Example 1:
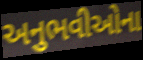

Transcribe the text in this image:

અનુભવીઓના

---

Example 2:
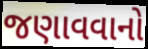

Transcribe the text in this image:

જણાવવાનો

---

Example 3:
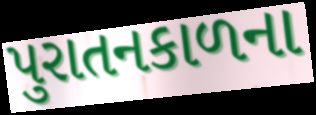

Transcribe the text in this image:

પુરાતનકાળના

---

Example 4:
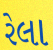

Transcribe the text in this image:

રેલા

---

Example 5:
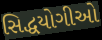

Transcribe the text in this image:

સિદ્ધયોગીઓ